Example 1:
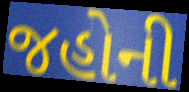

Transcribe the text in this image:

જહોની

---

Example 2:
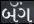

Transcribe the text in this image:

બૅંગ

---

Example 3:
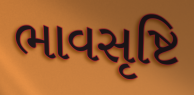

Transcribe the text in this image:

ભાવસૃષ્ટિ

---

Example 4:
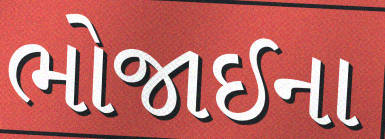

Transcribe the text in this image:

ભોજાઈના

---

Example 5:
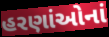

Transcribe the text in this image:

હરણાંઓનાં